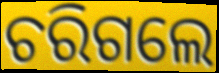
ଚରିଗଲେ